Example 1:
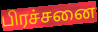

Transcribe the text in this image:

பிரச்சனை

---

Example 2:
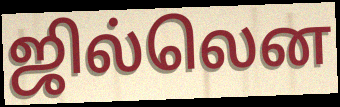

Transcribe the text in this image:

ஜில்லென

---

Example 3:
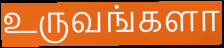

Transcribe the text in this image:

உருவங்களா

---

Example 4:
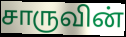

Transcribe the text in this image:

சாருவின்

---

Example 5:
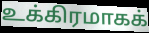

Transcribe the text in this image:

உக்கிரமாகக்